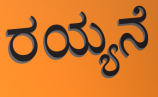
ರಯ್ಯನೆ